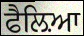
ਫੈਲ਼ਿਆ